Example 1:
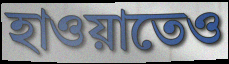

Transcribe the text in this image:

হাওয়াতেও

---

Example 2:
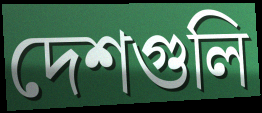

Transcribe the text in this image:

দেশগুলি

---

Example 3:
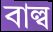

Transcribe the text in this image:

বাল্ব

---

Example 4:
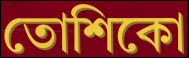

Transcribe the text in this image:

তোশিকো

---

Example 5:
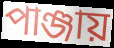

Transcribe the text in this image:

পাঞ্জায়